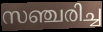
സഞ്ചരിച്ച